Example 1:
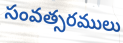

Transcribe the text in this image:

సంవత్సరములు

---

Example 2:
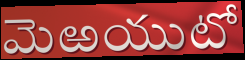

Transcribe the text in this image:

మెఱయుటో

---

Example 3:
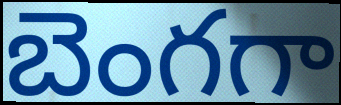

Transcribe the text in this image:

బెంగగా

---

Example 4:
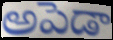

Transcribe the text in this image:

అపెడా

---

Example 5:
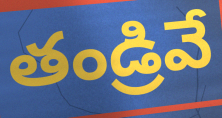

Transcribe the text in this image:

తండ్రివే